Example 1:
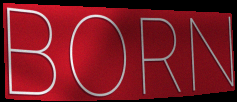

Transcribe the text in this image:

BORN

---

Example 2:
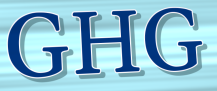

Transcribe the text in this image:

GHG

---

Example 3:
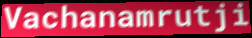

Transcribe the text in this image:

Vachanamrutji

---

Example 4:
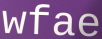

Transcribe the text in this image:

wfae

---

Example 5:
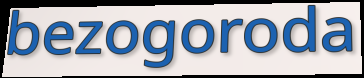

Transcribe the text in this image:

bezogoroda